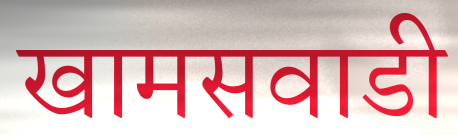
खामसवाडी